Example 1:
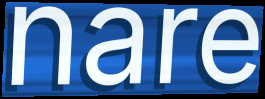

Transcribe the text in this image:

nare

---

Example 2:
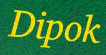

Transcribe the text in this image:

Dipok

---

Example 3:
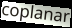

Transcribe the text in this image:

coplanar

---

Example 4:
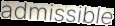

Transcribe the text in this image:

admissible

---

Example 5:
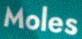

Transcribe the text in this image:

Moles